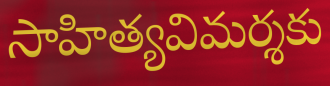
సాహిత్యవిమర్శకు